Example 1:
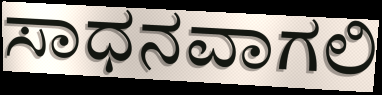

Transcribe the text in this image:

ಸಾಧನವಾಗಲಿ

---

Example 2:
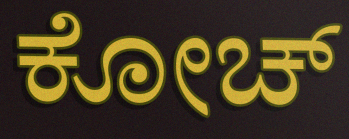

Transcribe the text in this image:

ಕೋಚ್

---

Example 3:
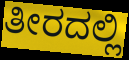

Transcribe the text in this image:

ತೀರದಲ್ಲಿ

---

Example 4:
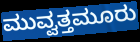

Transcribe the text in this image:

ಮುವ್ವತ್ತಮೂರು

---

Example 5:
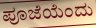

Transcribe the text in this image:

ಪೂಜೆಯೆಂದು